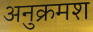
अनुक्रमश